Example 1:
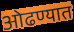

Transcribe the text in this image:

ओढण्यात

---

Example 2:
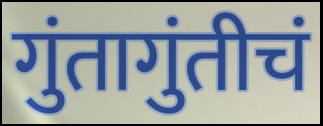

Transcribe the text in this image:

गुंतागुंतीचं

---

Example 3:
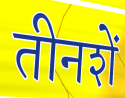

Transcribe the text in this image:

तीनशें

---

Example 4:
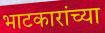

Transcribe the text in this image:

भाटकारांच्या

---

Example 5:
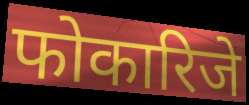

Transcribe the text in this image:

फोकारिजे